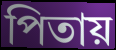
পিতায়